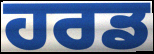
ਹਰਡ